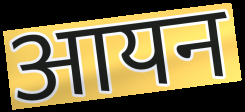
आयन